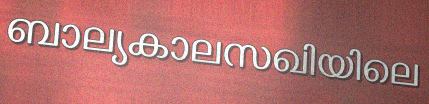
ബാല്യകാലസഖിയിലെ